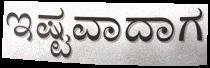
ಇಷ್ಟವಾದಾಗ